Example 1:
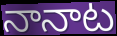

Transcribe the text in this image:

నానాట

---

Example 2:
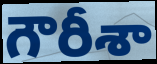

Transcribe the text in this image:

గౌరీశా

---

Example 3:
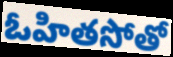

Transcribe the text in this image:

ఓహితసోతో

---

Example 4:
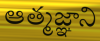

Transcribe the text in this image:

ఆత్మజ్ఞాని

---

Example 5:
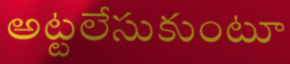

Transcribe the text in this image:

అట్టలేసుకుంటూ